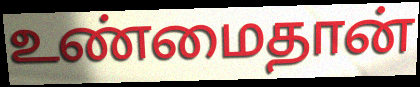
உண்மைதான்